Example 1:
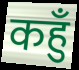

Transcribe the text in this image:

कहुँ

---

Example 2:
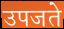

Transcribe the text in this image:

उपजते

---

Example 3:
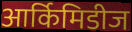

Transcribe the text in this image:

आर्किमिडीज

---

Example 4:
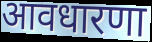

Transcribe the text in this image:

आवधारणा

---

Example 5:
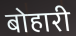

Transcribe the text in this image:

बोहारी